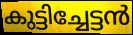
കുട്ടിച്ചേട്ടൻ